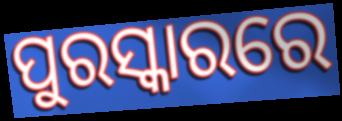
ପୁରସ୍କାରରେ